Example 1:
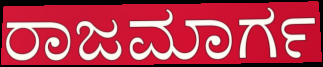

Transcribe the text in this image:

ರಾಜಮಾರ್ಗ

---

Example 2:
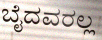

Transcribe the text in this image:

ಬೈದವರಲ್ಲ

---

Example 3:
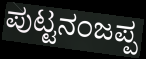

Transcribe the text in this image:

ಪುಟ್ಟನಂಜಪ್ಪ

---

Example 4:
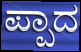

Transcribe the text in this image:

ಪ್ಪಾದ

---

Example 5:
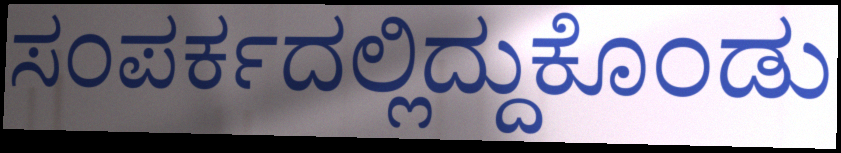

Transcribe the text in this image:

ಸಂಪರ್ಕದಲ್ಲಿದ್ದುಕೊಂಡು